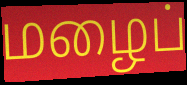
மழைப்